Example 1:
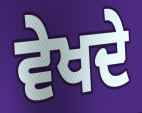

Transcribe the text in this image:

ਵੇਖਦੇ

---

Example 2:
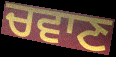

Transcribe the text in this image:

ਚਵਾਣ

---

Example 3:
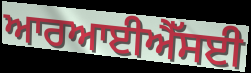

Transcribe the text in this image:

ਆਰਆਈਐੱਸਈ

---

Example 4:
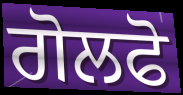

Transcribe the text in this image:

ਗੋਲਫੋ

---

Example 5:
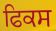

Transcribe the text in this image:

ਫਿਕਸ